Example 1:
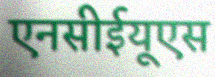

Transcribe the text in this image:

एनसीईयूएस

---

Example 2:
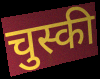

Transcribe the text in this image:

चुस्की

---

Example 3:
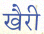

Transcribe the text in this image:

खैरी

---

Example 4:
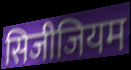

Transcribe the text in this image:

सिजीजियम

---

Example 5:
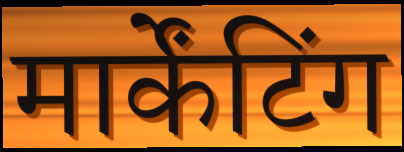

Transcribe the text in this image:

मार्केंटिंग